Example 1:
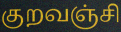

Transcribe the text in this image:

குறவஞ்சி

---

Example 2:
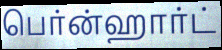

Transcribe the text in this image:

பெர்ன்ஹார்ட்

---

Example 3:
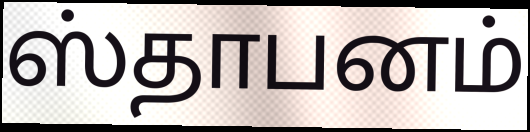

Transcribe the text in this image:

ஸ்தாபனம்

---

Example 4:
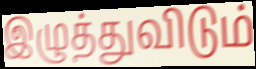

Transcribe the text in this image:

இழுத்துவிடும்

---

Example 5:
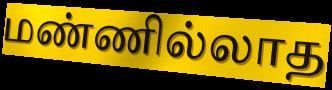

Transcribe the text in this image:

மண்ணில்லாத